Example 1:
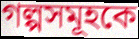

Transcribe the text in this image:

গল্পসমূহকে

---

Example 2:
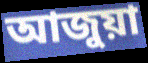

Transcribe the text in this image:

আজুয়া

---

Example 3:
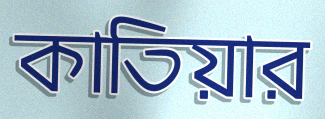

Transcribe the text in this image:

কাতিয়ার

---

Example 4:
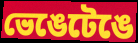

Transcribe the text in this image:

ভেঙেটেঙে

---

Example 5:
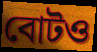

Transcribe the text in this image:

বোটও